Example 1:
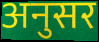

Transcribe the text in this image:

अनुसर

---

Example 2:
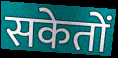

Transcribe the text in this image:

सकेतों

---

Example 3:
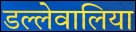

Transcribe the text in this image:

डल्लेवालिया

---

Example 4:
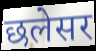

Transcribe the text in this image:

छलेसर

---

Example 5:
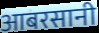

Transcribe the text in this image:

आबरसानी